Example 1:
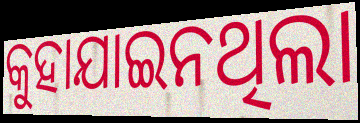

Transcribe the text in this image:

କୁହାଯାଇନଥିଲା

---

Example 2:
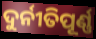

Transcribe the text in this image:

ଦୁର୍ନୀତିପୂର୍ଣ୍ଣ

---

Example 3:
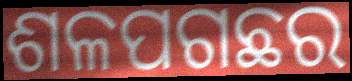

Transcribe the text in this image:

ଶଳପଗଛର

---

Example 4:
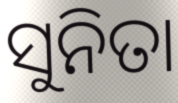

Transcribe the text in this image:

ସୁନିତା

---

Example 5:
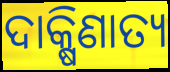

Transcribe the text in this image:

ଦାକ୍ଷିଣାତ୍ୟ